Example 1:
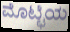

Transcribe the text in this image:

ಮೊಟ್ಟೆಯ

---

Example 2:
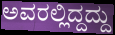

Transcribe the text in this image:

ಅವರಲ್ಲಿದ್ದದ್ದು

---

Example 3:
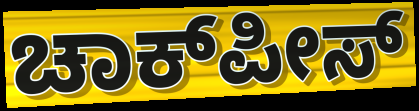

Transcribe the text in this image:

ಚಾಕ್‌ಪೀಸ್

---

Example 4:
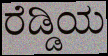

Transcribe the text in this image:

ರೆಡ್ಡಿಯ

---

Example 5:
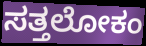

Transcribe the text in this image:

ಸತ್ತಲೋಕಂ